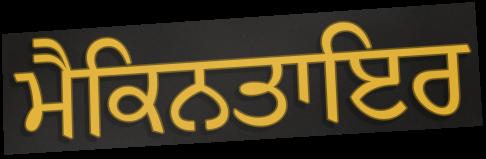
ਮੈਕਿਨਤਾਇਰ